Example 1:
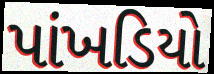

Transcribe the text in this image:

પાંખડિયો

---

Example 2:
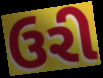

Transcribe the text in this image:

ઉરી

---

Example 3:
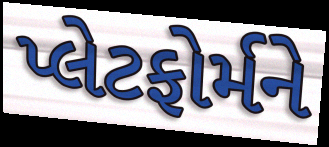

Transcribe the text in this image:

પ્લેટફોર્મને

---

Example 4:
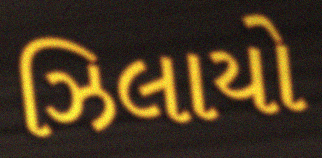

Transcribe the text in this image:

ઝિલાયો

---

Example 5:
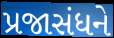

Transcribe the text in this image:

પ્રજાસંધને